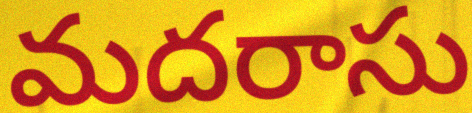
మదరాసు